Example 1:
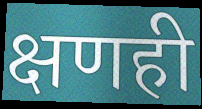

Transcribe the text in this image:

क्षणही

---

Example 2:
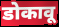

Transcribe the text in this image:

डोकावू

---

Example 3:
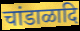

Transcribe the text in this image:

चांडाळादि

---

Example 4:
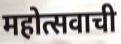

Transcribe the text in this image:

महोत्सवाची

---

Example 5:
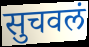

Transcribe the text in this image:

सुचवलं